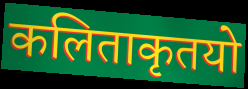
कलिताकृतयो